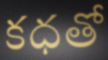
కధతో